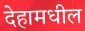
देहामधील